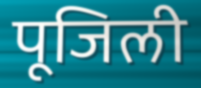
पूजिली